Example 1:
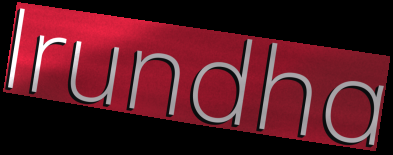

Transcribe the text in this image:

Irundha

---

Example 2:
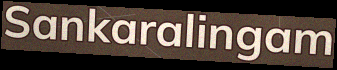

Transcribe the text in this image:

Sankaralingam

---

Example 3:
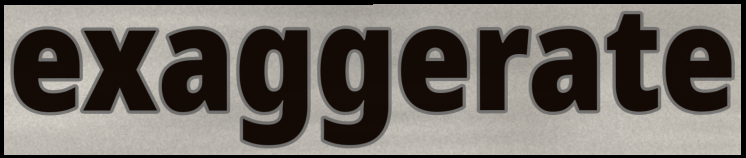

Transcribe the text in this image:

exaggerate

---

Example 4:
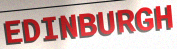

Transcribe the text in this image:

EDINBURGH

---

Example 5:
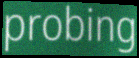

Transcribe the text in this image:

probing